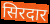
सिरदार